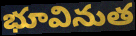
భూవినుత